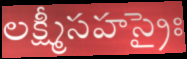
లక్ష్మీసహస్రైః